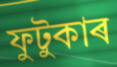
ফুটুকাৰ